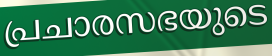
പ്രചാരസഭയുടെ